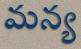
మన్య